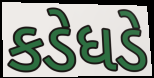
કડેધડે